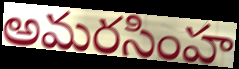
అమరసింహ